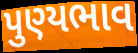
પુણ્યભાવ